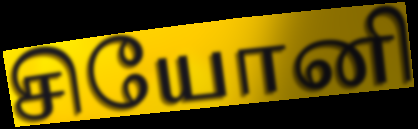
சியோனி